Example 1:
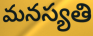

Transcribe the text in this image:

మనస్యతి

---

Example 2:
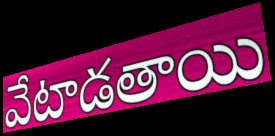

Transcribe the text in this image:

వేటాడతాయి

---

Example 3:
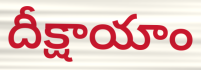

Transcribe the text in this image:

దీక్షాయాం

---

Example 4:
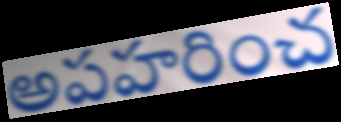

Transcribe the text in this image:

అపహరించ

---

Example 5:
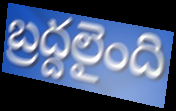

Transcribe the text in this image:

బ్రద్దలైంది